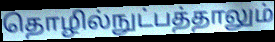
தொழில்நுட்பத்தாலும்